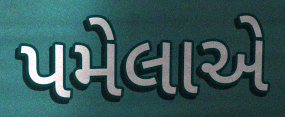
પમેલાએ